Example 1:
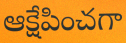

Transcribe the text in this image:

ఆక్షేపించగా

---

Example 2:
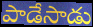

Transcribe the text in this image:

పాడేసాడు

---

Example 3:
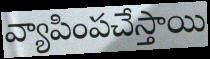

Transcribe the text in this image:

వ్యాపింపచేస్తాయి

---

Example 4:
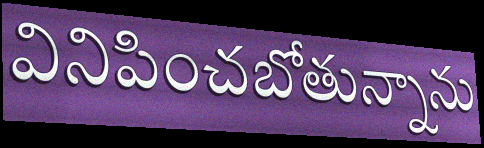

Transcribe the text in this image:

వినిపించబోతున్నాను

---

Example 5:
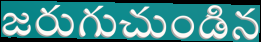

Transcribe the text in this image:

జరుగుచుండిన